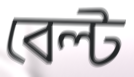
বেল্ট